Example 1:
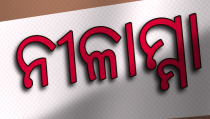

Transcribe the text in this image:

ନୀଳାମ୍ମା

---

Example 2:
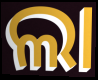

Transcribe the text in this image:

ଲା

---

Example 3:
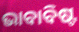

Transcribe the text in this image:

ଭାବାବିଷ୍ଟ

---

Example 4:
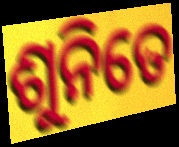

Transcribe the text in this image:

ଶୁନିତେ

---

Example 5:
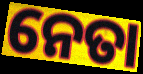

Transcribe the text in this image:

ନେତା